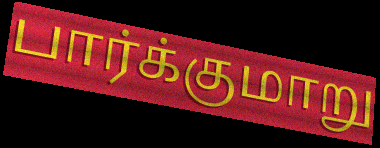
பார்க்குமாறு